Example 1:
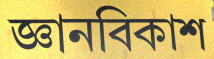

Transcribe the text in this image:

জ্ঞানবিকাশ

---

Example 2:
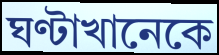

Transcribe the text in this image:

ঘণ্টাখানেকে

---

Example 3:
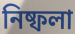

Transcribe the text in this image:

নিষ্ফলা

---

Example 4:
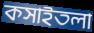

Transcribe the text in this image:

কসাইতলা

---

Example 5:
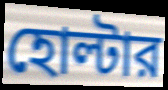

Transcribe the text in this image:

হোল্টার